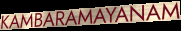
KAMBARAMAYANAM